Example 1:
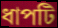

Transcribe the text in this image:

ধাপটি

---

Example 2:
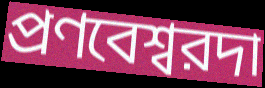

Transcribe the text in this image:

প্রণবেশ্বরদা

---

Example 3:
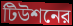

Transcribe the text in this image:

টিউশনের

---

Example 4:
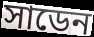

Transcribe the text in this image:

সাডেন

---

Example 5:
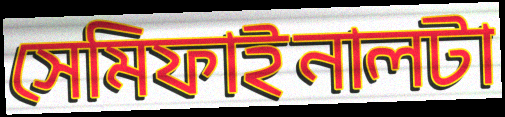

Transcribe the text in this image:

সেমিফাইনালটা